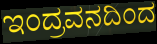
ಇಂದ್ರವನದಿಂದ